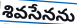
శివసేనను